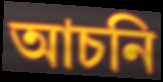
আচনি